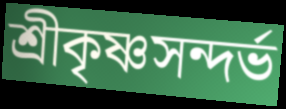
শ্রীকৃষ্ণসন্দর্ভ